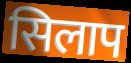
सिलाप